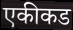
एकीकड